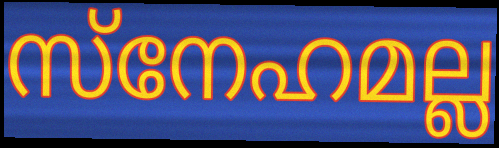
സ്നേഹമല്ല